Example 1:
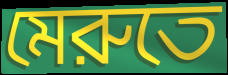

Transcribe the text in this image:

মেরুতে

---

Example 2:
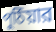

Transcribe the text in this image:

পুঠিয়ার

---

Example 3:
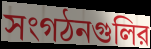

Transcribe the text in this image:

সংগঠনগুলির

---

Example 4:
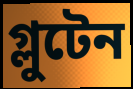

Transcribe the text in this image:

গ্লুটেন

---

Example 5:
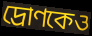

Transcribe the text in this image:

দ্রোণকেও